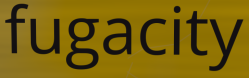
fugacity